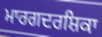
ਮਾਰਗਦਰਸ਼ਿਕਾ